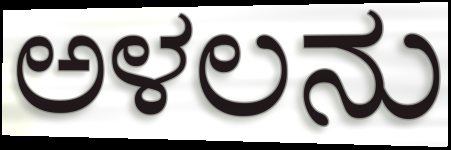
ಅಳಲನು